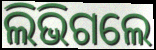
ଲିଭିଗଲେ